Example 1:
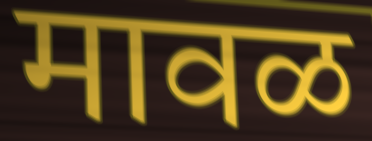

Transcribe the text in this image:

मावळ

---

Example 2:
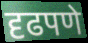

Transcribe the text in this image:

दृढपणे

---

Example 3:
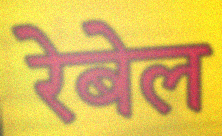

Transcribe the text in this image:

रेबेल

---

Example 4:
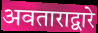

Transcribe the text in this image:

अवताराद्वारे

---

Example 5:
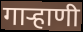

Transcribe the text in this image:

गार्‍हाणी